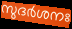
സുദർശനഃ